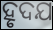
ହୃଦଯ